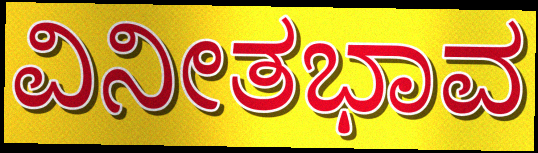
ವಿನೀತಭಾವ